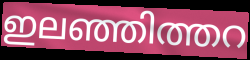
ഇലഞ്ഞിത്തറ